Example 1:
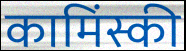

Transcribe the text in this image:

कामिंस्की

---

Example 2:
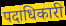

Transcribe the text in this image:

पदाधिकारी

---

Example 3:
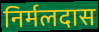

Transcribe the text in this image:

निर्मलदास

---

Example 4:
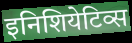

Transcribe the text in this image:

इनिशियेटिव्स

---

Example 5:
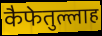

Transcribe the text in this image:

कैफेतुल्लाह